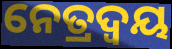
ନେତ୍ରଦ୍ଵୟ